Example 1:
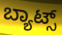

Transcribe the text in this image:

ಬ್ಯಾಟ್ಸ್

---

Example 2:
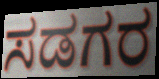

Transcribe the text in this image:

ಸಡಗರ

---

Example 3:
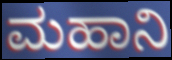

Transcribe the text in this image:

ಮಹಾನಿ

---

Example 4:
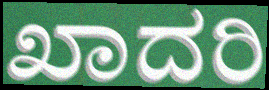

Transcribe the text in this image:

ಖಾದರಿ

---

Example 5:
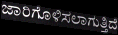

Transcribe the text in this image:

ಜಾರಿಗೊಳಿಸಲಾಗುತ್ತಿದೆ